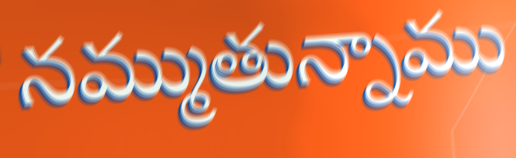
నమ్ముతున్నాము